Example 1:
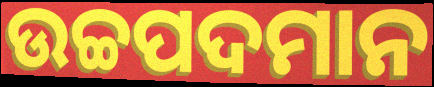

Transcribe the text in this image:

ଉଚ୍ଚପଦମାନ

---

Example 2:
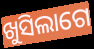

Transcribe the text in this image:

ଖୁସିଲାଗେ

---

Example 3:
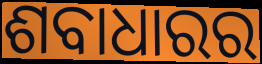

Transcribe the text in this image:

ଶବାଧାରର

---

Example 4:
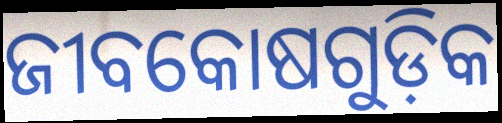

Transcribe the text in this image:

ଜୀବକୋଷଗୁଡ଼ିକ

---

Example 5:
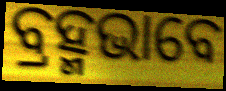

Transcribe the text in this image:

ବ୍ରହ୍ମଭାବେ